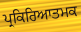
ਪ੍ਰਕਿਰਿਆਤਮਕ